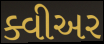
ક્વીઅર